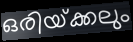
ഒരിയ്‌ക്കലും